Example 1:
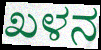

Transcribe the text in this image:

ಖಳನ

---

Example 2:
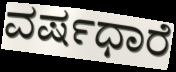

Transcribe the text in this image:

ವರ್ಷಧಾರೆ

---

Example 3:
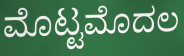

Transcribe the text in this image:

ಮೊಟ್ಟಮೊದಲ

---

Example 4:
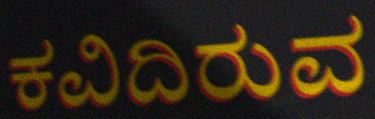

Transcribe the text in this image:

ಕವಿದಿರುವ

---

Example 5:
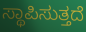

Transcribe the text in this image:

ಸ್ಥಾಪಿಸುತ್ತದೆ